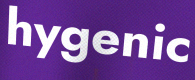
hygenic